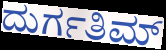
ದುರ್ಗತಿಮ್